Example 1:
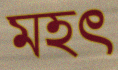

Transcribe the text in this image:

মহত্‍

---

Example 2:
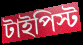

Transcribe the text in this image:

টাইপিস্ট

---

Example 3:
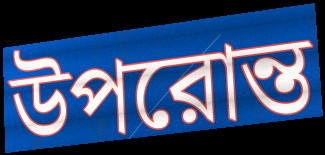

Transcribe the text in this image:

উপরোন্ত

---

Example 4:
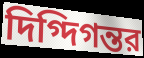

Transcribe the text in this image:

দিগ্দিগন্তর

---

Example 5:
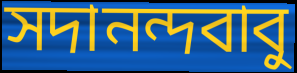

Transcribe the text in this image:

সদানন্দবাবু